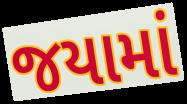
જયામાં